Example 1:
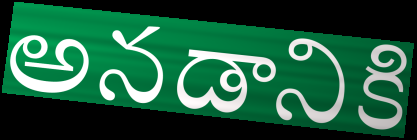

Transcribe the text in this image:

అనడానికి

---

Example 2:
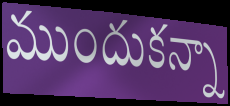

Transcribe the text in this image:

ముందుకన్నా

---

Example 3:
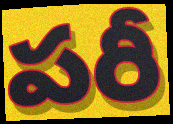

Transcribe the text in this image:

పరీ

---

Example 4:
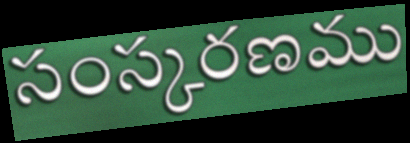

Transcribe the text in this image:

సంస్కరణము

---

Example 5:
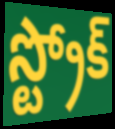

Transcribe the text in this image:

స్ట్రోక్